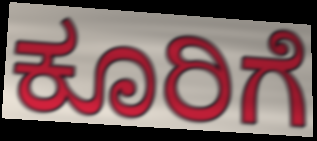
ಕೂರಿಗೆ